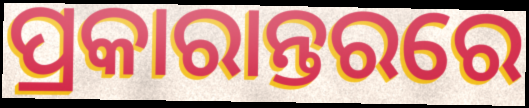
ପ୍ରକାରାନ୍ତରରେ